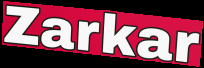
Zarkar